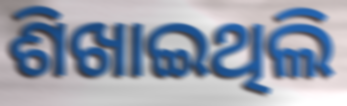
ଶିଖାଇଥିଲି